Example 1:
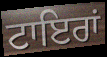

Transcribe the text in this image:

ਟਾਇਰਾਂ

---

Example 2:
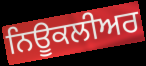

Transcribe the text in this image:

ਨਿਊਕਲੀਅਰ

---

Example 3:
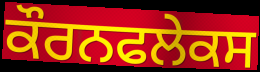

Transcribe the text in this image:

ਕੌਰਨਫਲੇਕਸ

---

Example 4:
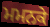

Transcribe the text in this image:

ਮਮਨਕੇ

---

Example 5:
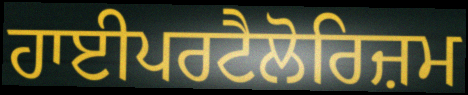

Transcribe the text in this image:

ਹਾਈਪਰਟੈਲੋਰਿਜ਼ਮ